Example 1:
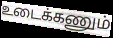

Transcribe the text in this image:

உடைக்கணும்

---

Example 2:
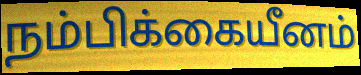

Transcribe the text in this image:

நம்பிக்கையீனம்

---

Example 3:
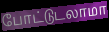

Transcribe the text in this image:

போட்டுடலாமா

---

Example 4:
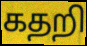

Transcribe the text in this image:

கதறி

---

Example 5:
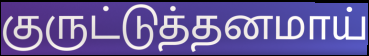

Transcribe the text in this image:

குருட்டுத்தனமாய்